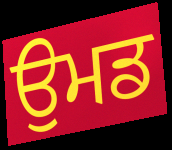
ਉਮਡ